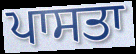
ਪਾਸਤਾ